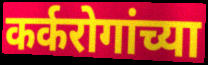
कर्करोगांच्या